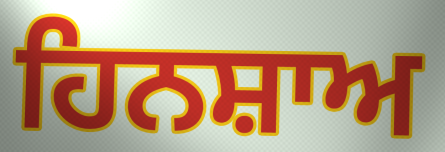
ਹਿਨਸ਼ਾਅ